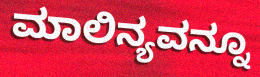
ಮಾಲಿನ್ಯವನ್ನೂ